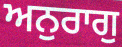
ਅਨੁਰਾਗੁ